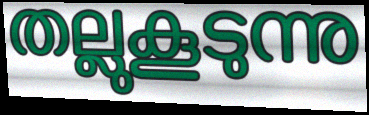
തല്ലുകൂടുന്നു